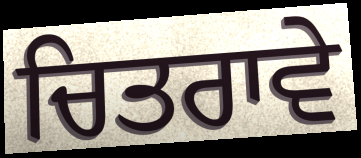
ਚਿਤਰਾਵੇ